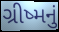
ગ્રીષ્મનું